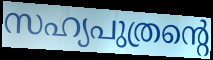
സഹ്യപുത്രന്റെ